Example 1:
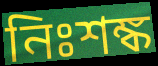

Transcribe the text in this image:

নিঃশঙ্ক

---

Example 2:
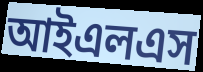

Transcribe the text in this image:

আইএলএস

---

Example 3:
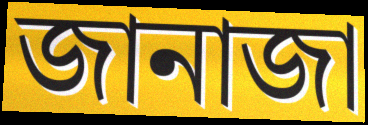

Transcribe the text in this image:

জানাজা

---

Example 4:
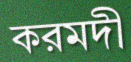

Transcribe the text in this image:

করমদী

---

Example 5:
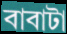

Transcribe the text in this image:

বাবাটা